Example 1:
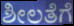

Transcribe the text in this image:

ಶೀಲತೆಗೆ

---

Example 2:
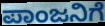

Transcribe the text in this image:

ಪಾಂಜನಿಗೆ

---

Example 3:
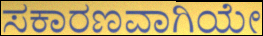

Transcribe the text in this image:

ಸಕಾರಣವಾಗಿಯೇ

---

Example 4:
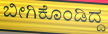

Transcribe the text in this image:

ಬೀಗಿಕೊಂಡಿದ್ದ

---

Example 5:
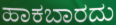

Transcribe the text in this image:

ಹಾಕಬಾರದು